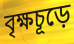
বৃক্ষচূড়ে